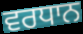
ਵਰਧਾਨ